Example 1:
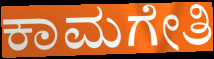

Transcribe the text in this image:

ಕಾಮಗೇತಿ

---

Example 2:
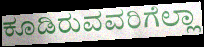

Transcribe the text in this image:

ಕೂಡಿರುವವರಿಗೆಲ್ಲಾ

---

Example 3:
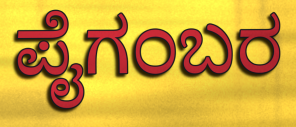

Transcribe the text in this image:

ಪೈಗಂಬರ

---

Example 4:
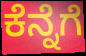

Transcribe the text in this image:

ಕೆನ್ನೆಗೆ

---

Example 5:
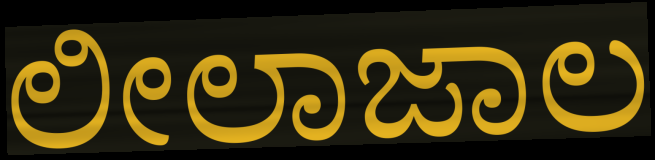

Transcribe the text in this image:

ಲೀಲಾಜಾಲ